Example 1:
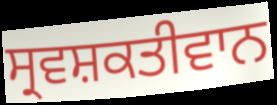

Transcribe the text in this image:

ਸ੍ਰਵਸ਼ਕਤੀਵਾਨ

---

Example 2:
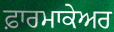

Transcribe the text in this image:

ਫ਼ਾਰਮਾਕੇਅਰ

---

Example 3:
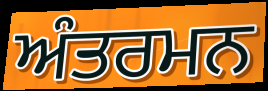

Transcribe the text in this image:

ਅੰਤਰਮਨ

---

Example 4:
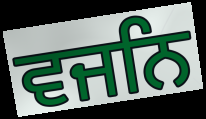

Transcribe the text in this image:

ਵਜਨਿ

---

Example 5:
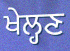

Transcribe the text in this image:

ਖੇਲ੍ਹਣ